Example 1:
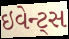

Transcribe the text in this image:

ઇવેન્ટ્સ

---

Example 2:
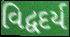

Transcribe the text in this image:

વિદ્વદર્ય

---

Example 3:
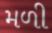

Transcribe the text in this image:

મળી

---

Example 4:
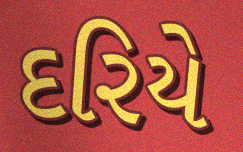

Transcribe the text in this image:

દરિયે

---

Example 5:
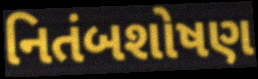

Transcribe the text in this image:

નિતંબશોષણ